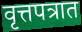
वृत्तपत्रात